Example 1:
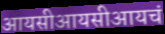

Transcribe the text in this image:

आयसीआयसीआयचं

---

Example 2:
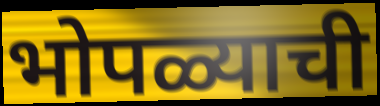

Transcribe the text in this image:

भोपळ्याची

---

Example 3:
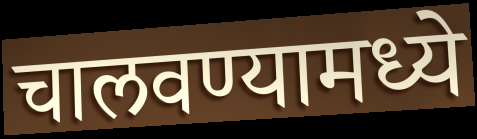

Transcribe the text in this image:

चालवण्यामध्ये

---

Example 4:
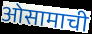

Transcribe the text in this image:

ओसामाची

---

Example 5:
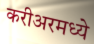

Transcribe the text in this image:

करीअरमध्ये